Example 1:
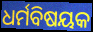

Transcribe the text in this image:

ଧର୍ମବିଷୟକ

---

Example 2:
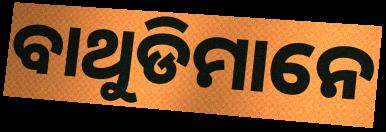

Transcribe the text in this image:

ବାଥୁଡିମାନେ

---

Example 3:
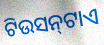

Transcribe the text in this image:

ଟିଉସନ୍‍ଟାଏ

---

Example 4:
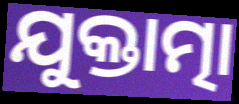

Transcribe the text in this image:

ଯୁକ୍ତାତ୍ମା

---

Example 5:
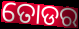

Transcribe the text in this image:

ତୋଡର